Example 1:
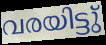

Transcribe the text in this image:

വരയിട്ടു്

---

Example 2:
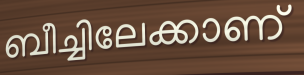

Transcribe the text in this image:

ബീച്ചിലേക്കാണ്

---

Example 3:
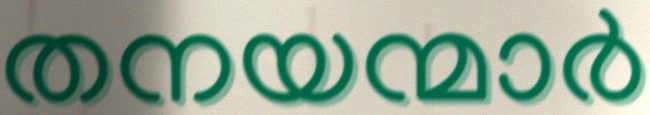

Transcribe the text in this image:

തനയന്മാർ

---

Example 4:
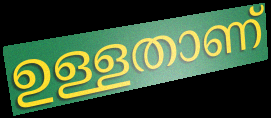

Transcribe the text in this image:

ഉള്ളതാണ്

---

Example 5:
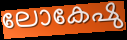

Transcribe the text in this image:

ലോകേഷു